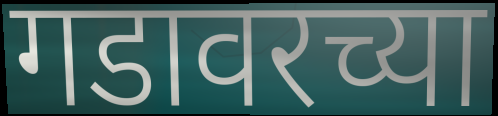
गडावरच्या